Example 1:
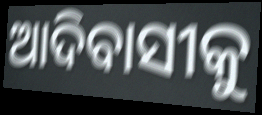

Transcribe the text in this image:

ଆଦିବାସୀକୁ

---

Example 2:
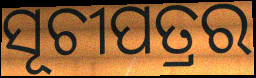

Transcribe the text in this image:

ସୂଚୀପତ୍ରର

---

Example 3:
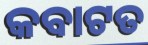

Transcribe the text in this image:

କବାଟତ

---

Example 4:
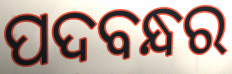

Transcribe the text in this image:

ପଦବନ୍ଧର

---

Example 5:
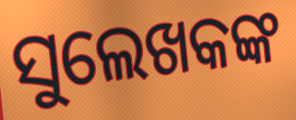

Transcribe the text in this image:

ସୁଲେଖକଙ୍କ